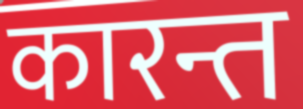
कारन्त